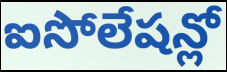
ఐసోలేషన్లో